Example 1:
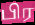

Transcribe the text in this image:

பிர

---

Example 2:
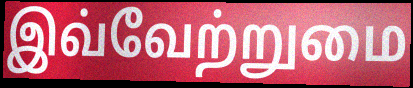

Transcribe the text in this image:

இவ்வேற்றுமை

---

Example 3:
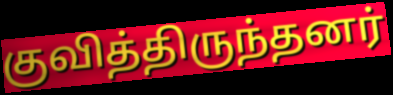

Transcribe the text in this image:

குவித்திருந்தனர்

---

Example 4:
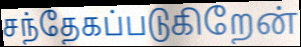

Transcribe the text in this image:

சந்தேகப்படுகிறேன்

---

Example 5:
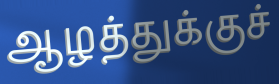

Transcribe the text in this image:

ஆழத்துக்குச்